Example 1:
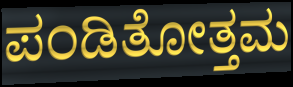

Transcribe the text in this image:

ಪಂಡಿತೋತ್ತಮ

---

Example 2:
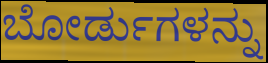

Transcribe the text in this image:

ಬೋರ್ಡುಗಳನ್ನು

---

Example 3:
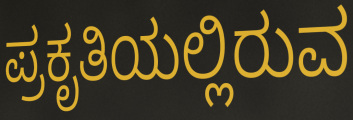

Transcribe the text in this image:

ಪ್ರಕೃತಿಯಲ್ಲಿರುವ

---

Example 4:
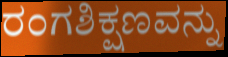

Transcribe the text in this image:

ರಂಗಶಿಕ್ಷಣವನ್ನು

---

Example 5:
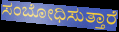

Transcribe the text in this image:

ಸಂಬೋಧಿಸುತ್ತಾರೆ